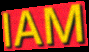
IAM